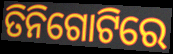
ତିନିଗୋଟିରେ